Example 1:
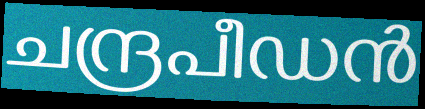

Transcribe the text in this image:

ചന്ദ്രപീഡൻ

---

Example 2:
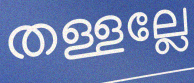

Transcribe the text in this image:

തള്ളല്ലേ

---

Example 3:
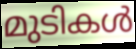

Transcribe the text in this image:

മുടികൾ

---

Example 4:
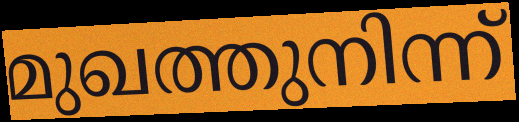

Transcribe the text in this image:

മുഖത്തുനിന്ന്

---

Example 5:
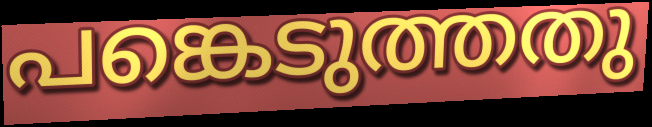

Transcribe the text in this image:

പങ്കെടുത്തതു